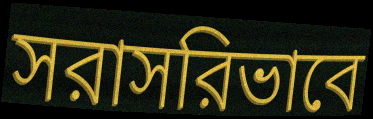
সরাসরিভাবে